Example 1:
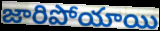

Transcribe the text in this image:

జారిపోయాయి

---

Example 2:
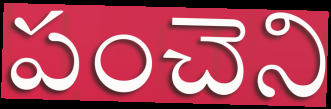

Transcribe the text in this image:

పంచెని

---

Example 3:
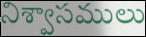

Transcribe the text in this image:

నిశ్వాసములు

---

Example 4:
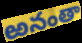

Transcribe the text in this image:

ఱనంతా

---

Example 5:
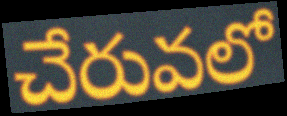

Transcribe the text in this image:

చేరువలో